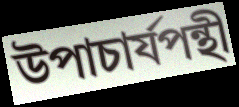
উপাচার্যপন্থী